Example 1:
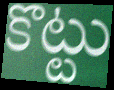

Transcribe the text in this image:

కొట్టు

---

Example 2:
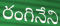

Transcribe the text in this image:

రంగినేని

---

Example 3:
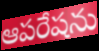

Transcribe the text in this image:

ఆపరేషను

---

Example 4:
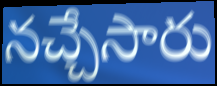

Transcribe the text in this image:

నచ్చేసారు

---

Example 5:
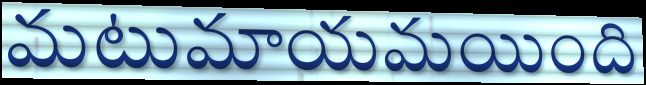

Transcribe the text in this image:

మటుమాయమయింది